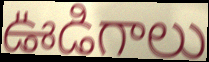
ఊడిగాలు